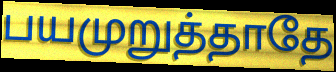
பயமுறுத்தாதே